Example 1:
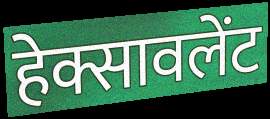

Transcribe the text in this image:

हेक्सावलेंट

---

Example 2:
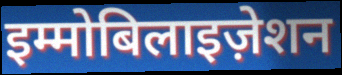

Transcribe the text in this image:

इम्मोबिलाइज़ेशन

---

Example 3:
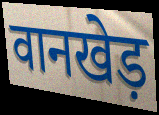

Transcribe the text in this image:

वानखेड़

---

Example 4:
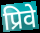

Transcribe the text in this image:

प्रिवे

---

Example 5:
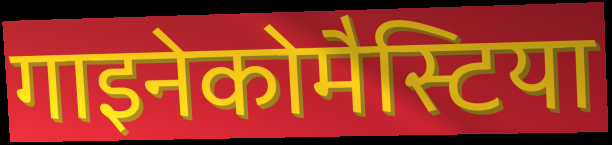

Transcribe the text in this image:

गाइनेकोमैस्टिया